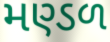
મણ્ડળ